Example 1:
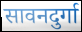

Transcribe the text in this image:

सावनदुर्गा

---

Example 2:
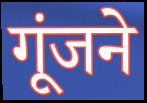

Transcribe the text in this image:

गूंजने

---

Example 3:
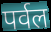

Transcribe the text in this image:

पर्वल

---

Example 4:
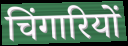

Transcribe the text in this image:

चिंगारियों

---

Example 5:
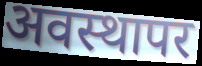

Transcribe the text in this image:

अवस्थापर